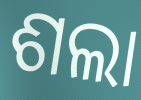
ଶଲା